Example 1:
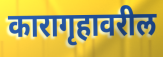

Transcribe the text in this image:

कारागृहावरील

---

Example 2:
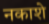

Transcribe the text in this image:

नकाशे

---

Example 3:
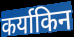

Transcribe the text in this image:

कर्याकिन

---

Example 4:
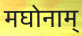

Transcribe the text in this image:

मघोनाम्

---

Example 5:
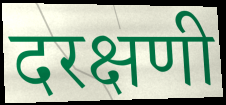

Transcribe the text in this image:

दरक्षणी